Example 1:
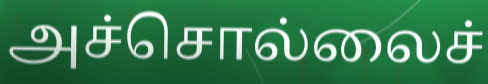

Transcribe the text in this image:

அச்சொல்லைச்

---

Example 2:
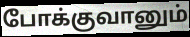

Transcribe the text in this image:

போக்குவானும்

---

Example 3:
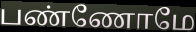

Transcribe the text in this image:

பண்ணோமே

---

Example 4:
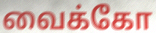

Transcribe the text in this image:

வைக்கோ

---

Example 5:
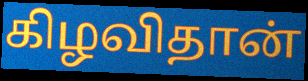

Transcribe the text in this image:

கிழவிதான்